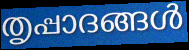
തൃപ്പാദങ്ങൾ